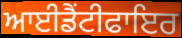
ਆਈਡੈਂਟੀਫਾਇਰ